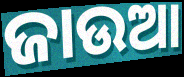
ଜାଉଆ